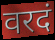
वरदं